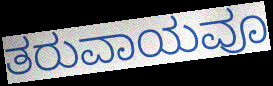
ತರುವಾಯವೂ